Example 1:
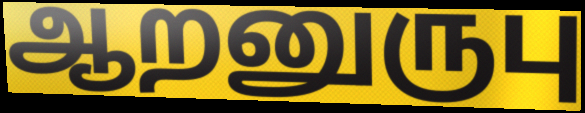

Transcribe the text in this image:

ஆறனுருபு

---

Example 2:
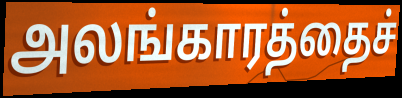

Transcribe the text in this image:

அலங்காரத்தைச்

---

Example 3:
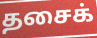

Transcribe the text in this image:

தசைக்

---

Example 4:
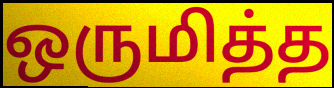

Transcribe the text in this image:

ஒருமித்த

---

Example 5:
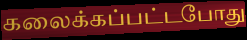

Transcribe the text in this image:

கலைக்கப்பட்டபோது